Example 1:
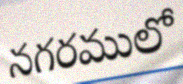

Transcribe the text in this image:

నగరములో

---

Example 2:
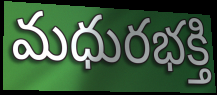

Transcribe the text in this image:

మధురభక్తి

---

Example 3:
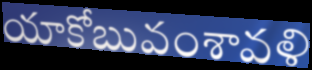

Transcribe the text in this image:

యాకోబువంశావళి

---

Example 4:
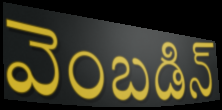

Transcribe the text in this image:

వెంబడిన్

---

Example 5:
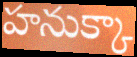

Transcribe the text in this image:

హనుక్కా